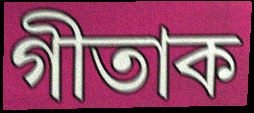
গীতাক